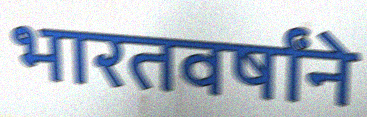
भारतवर्षांने